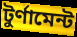
টুর্ণামেন্ট